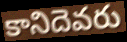
కానిదెవరు